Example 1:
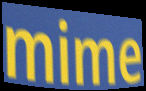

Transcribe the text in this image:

mime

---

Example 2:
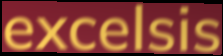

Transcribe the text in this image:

excelsis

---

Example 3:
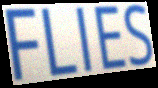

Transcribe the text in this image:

FLIES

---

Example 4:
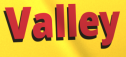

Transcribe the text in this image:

Valley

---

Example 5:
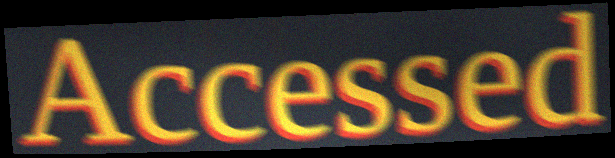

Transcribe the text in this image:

Accessed